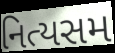
નિત્યસમ